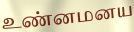
உண்னமனய